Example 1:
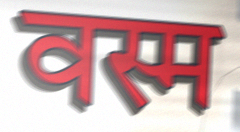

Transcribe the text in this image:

वस्म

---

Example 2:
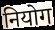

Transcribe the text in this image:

नियोग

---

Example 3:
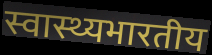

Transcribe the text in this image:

स्वास्थ्यभारतीय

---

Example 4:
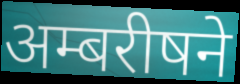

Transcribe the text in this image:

अम्बरीषने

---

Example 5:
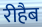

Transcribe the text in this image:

रीहैब